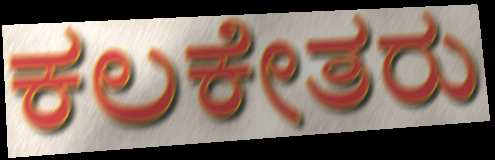
ಕಲಕೇತರು